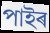
পাইৰ